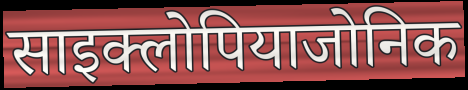
साइक्लोपियाजोनिक